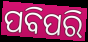
ପବିପରି